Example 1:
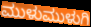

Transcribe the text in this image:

ಮುಳುಮುಳುಗಿ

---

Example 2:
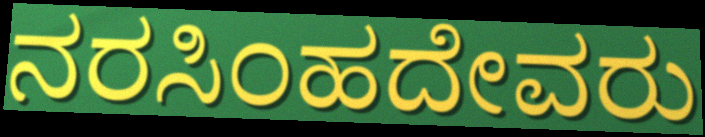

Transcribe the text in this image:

ನರಸಿಂಹದೇವರು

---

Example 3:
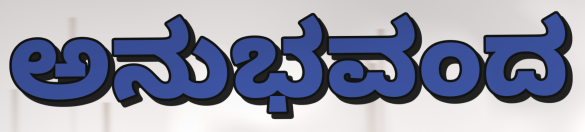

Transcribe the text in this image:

ಅನುಭವಂದ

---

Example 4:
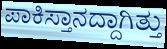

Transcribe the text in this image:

ಪಾಕಿಸ್ತಾನದ್ದಾಗಿತ್ತು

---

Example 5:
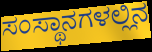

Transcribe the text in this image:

ಸಂಸ್ಥಾನಗಳಲ್ಲಿನ